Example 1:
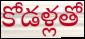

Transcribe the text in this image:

కోడళ్లతో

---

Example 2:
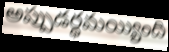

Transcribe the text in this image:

అప్పుడర్ధమయ్యింది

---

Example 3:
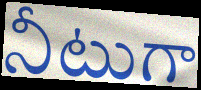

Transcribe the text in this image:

నీటుగా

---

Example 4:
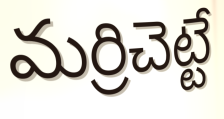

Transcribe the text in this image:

మర్రిచెట్టే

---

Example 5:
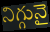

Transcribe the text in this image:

నిగ్గునై